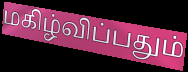
மகிழ்விப்பதும்